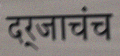
दर्जाचंच